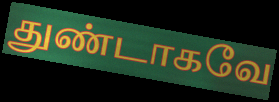
துண்டாகவே